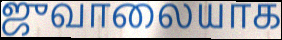
ஜுவாலையாக